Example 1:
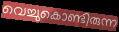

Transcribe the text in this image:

വെച്ചുകൊണ്ടിരുന്ന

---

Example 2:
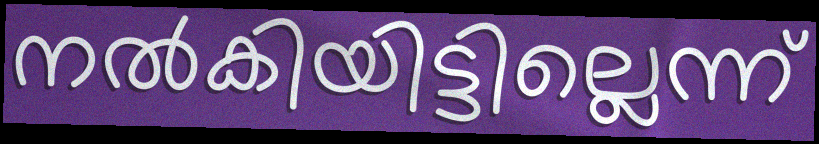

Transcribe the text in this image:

നൽകിയിട്ടില്ലെന്ന്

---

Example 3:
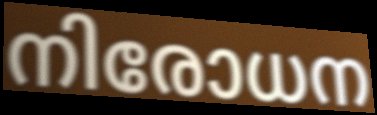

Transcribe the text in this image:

നിരോധന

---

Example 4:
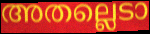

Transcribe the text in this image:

അതല്ലെടാ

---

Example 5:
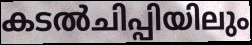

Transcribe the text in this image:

കടൽചിപ്പിയിലും